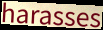
harasses